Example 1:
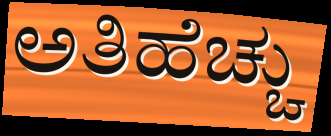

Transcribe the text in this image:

ಅತಿಹೆಚ್ಚು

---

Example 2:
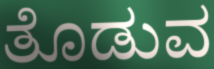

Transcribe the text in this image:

ತೊಡುವ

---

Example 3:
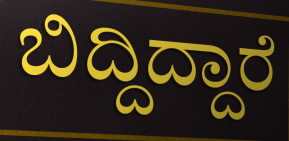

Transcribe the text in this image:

ಬಿದ್ದಿದ್ದಾರೆ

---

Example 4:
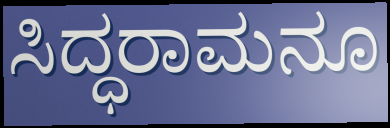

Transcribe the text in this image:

ಸಿದ್ಧರಾಮನೂ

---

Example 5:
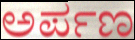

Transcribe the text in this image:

ಅರ್ಪಣ